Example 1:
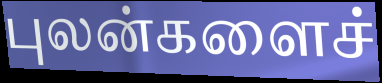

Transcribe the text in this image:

புலன்களைச்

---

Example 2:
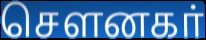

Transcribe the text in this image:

சௌனகர்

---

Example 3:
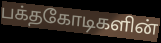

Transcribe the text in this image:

பக்தகோடிகளின்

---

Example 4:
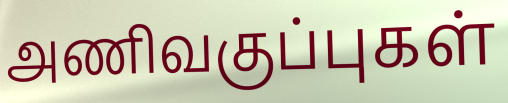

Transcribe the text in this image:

அணிவகுப்புகள்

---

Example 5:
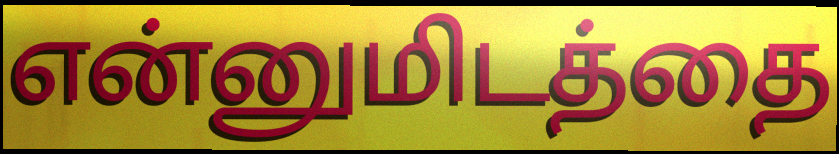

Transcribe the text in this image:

என்னுமிடத்தை